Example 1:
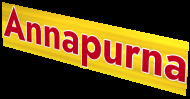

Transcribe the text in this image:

Annapurna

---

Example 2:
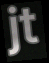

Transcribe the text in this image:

jt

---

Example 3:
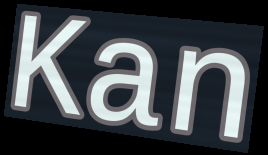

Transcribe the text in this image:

Kan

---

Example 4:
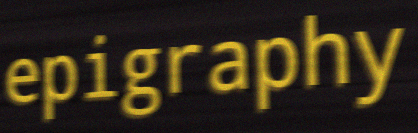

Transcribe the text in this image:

epigraphy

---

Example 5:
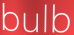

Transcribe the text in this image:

bulb